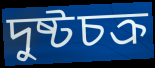
দুষ্টচক্র